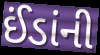
ઈંડાંની